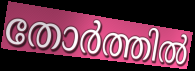
തോർത്തിൽ